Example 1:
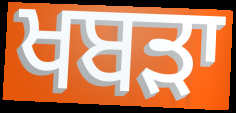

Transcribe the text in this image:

ਖਬੜਾ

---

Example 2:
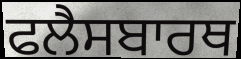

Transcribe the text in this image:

ਫਲੈਸਬਾਰਥ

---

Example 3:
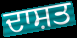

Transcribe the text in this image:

ਦਾਸ਼ਤ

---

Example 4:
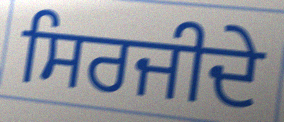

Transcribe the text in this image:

ਸਿਰਜੀਦੇ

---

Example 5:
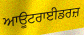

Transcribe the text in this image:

ਆਊਟਰਾਈਡਰਜ਼